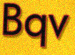
Bqv